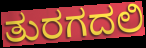
ತುರಗದಲಿ